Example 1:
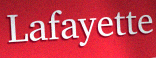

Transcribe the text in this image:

Lafayette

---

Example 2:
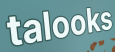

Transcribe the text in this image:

talooks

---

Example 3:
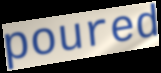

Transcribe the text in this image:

poured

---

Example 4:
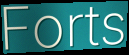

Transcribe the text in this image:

Forts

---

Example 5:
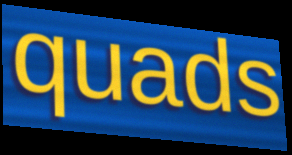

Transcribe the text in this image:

quads